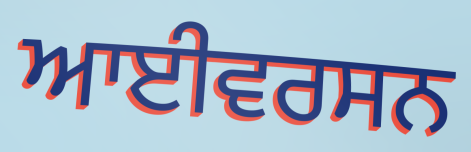
ਆਈਵਰਸਨ